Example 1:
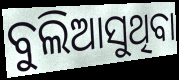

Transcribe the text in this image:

ବୁଲିଆସୁଥିବା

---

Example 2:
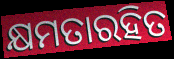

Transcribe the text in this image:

କ୍ଷମତାରହିତ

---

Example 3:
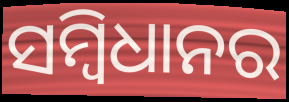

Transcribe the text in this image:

ସମ୍ବିଧାନର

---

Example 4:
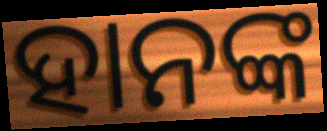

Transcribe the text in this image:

ହାନଙ୍କ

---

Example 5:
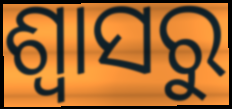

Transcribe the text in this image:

ଶ୍ୱାସରୁ